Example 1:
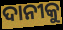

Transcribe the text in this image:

ଦାନୀକୁ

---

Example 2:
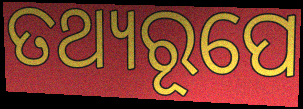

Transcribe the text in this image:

ତଥ୍ୟରୂପେ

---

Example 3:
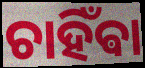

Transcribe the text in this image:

ଚାହିଁଵା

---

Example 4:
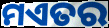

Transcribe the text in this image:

ମଏତର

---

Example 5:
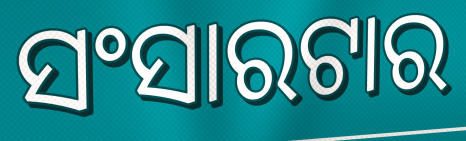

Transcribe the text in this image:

ସଂସାରଟାର